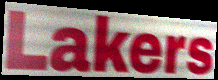
Lakers